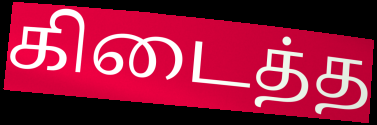
கிடைத்த